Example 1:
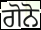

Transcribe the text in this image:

ਗੋਨੋ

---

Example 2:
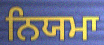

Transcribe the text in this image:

ਨਿਯਮਾ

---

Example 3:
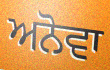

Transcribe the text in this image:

ਅਨੋਵਾ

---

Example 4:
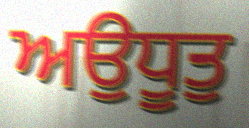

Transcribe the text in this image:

ਅਉਧੂਤੁ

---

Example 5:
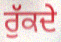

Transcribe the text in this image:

ਰੁੱਕਦੇ